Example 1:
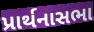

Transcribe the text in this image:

પ્રાર્થનાસભા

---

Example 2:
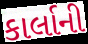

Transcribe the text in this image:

કાર્લાની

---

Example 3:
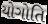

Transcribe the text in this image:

યોગોતિ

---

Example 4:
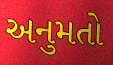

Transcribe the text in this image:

અનુમતો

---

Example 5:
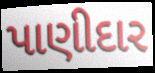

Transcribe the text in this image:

પાણીદાર